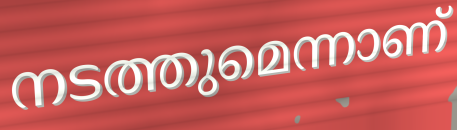
നടത്തുമെന്നാണ്